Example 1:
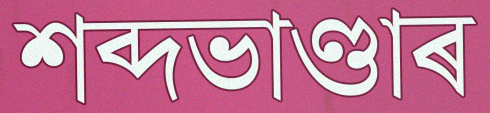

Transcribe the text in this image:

শব্দভাণ্ডাৰ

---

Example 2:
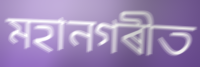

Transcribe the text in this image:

মহানগৰীত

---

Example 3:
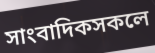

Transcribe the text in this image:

সাংবাদিকসকলে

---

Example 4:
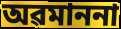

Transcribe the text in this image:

অৱমাননা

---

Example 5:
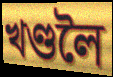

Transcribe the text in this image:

খণ্ডলৈ